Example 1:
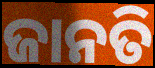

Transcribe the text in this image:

ଜାନତି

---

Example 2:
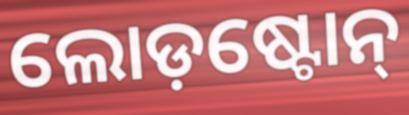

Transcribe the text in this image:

ଲୋଡ଼ଷ୍ଟୋନ୍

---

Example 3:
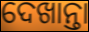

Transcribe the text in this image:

ଦେଖାନ୍ତା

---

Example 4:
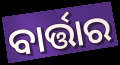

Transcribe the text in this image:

ବାର୍ତ୍ତାର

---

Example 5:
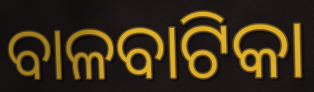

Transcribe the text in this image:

ବାଳବାଟିକା